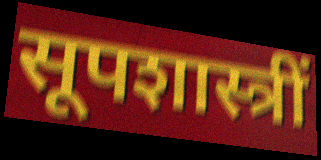
सूपशास्त्रीं